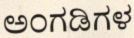
ಅಂಗಡಿಗಳ